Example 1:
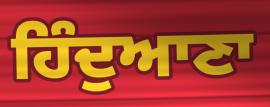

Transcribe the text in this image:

ਹਿੰਦੁਆਣਾ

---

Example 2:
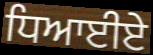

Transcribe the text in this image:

ਧਿਆਈਏ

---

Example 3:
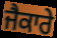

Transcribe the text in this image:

ਜੈਕਾਰੇ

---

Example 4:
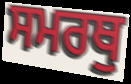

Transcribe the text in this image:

ਸਮਰਥੁ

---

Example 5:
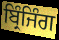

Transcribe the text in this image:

ਬ੍ਰਿੰਜਿੰਗ